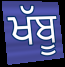
ਖੱਬੂ